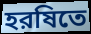
হরষিতে